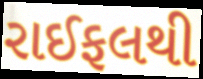
રાઈફલથી